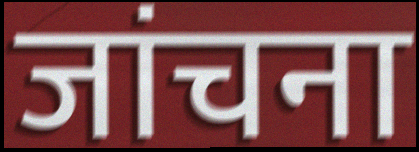
जांचना